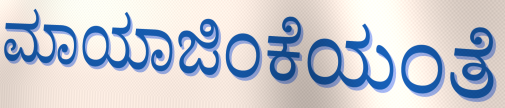
ಮಾಯಾಜಿಂಕೆಯಂತೆ